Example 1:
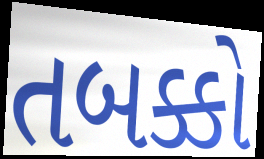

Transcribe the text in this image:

તબક્કો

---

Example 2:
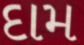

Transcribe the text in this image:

દામ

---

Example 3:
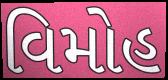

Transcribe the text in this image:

વિમોહ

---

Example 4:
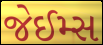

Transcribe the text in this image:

જેઈમ્સ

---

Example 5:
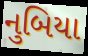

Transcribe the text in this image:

નુબિયા